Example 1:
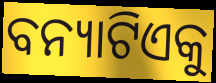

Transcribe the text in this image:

ବନ୍ୟାଟିଏକୁ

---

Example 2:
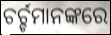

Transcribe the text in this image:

ଚର୍ଚ୍ଚମାନଙ୍କରେ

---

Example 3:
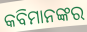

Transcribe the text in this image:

କବିମାନଙ୍କର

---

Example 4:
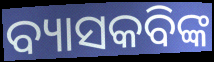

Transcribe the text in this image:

ବ୍ୟାସକବିଙ୍କ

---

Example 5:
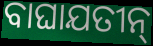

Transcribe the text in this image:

ବାଘାଯତୀନ୍